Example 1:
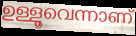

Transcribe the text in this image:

ഉള്ളൂവെന്നാണ്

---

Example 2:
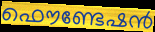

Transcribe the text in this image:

ഫൌണ്ടേഷൻ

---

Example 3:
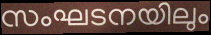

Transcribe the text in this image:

സംഘടനയിലും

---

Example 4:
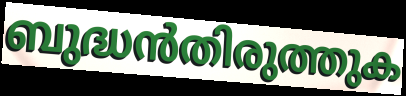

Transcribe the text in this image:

ബുദ്ധൻതിരുത്തുക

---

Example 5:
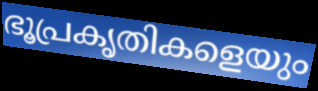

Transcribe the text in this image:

ഭൂപ്രകൃതികളെയും